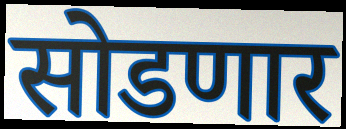
सोडणार